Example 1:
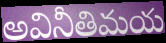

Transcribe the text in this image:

అవినీతిమయ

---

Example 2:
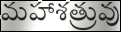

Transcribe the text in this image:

మహాశత్రువు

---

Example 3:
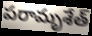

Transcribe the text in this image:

పరామృశేత్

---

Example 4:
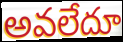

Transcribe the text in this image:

అవలేదూ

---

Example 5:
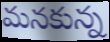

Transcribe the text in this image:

మనకున్న